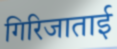
गिरिजाताई